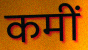
कमीं